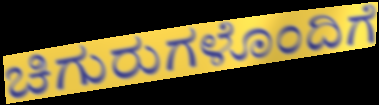
ಚಿಗುರುಗಳೊಂದಿಗೆ